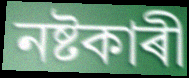
নষ্টকাৰী